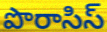
పొరాసిస్